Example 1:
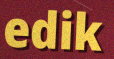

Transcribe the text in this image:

edik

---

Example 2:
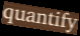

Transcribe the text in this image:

quantify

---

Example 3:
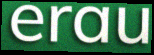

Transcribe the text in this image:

erau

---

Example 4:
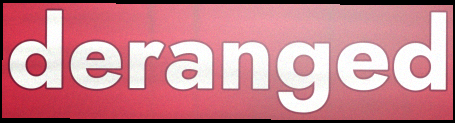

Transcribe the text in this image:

deranged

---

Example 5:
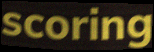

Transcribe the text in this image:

scoring